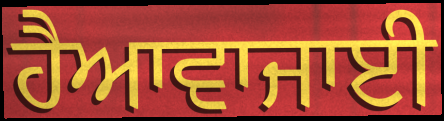
ਹੈਆਵਾਜਾਈ